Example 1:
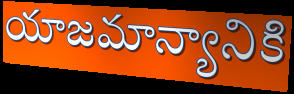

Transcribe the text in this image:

యాజమాన్యానికి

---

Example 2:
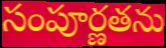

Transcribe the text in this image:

సంపూర్ణతను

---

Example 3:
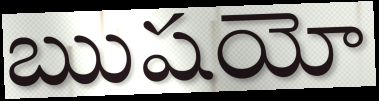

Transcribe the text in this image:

ఋషయో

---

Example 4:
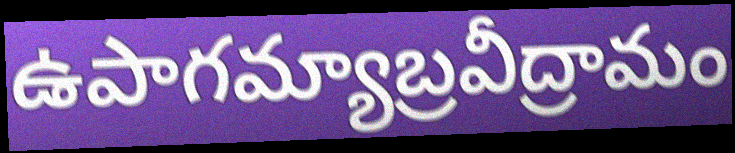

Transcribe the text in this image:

ఉపాగమ్యాబ్రవీద్రామం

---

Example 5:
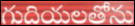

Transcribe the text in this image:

గుదియలతోను